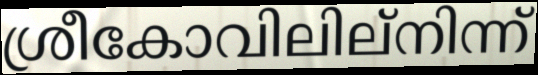
ശ്രീകോവിലില്നിന്ന്